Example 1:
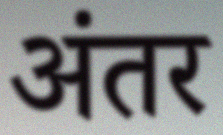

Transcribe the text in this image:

अंतर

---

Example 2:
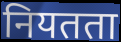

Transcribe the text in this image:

नियतता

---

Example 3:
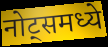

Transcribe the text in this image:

नोट्समध्ये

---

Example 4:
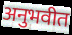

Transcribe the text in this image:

अनुभवीत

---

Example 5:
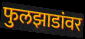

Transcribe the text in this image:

फुलझाडांवर